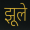
झूले